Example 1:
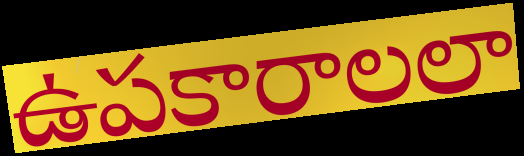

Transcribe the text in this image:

ఉపకారాలలా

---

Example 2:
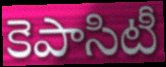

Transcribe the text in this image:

కెపాసిటీ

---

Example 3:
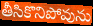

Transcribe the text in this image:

తీసికొనిపోవును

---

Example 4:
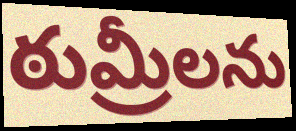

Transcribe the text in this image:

ఠుమ్రీలను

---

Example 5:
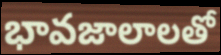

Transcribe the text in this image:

భావజాలాలతో